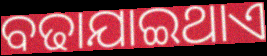
ବଢାଯାଇଥାଏ